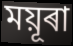
ময়ূৰা